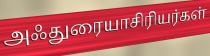
அஃதுரையாசிரியர்கள்